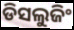
ଡିସଲୁଜିଂ